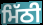
ਮਿੱਠੀ